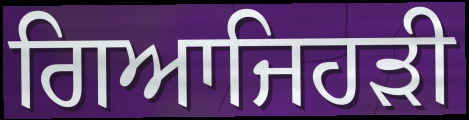
ਗਿਆਜਿਹੜੀ